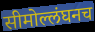
सीमोल्लंघनच